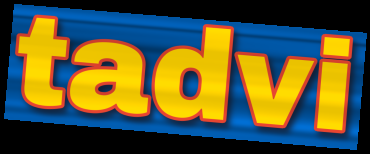
tadvi